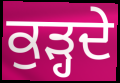
ਕੁੜ੍ਹਦੇ